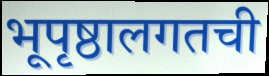
भूपृष्ठालगतची